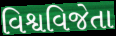
વિશ્વવિજેતા